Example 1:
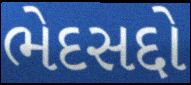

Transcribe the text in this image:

ભેદસદ્દો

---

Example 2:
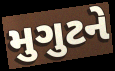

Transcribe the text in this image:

મુગુટને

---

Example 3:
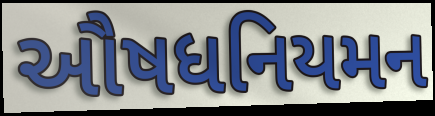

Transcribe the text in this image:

ઔષધનિયમન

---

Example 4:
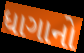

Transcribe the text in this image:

ધાગાનો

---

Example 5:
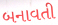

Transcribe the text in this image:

બનાવતી